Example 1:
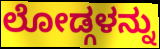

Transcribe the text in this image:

ಲೋಡ್ಗಳನ್ನು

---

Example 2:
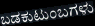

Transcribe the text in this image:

ಬಡಕುಟುಂಬಗಳು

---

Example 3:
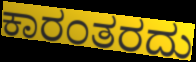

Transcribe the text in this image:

ಕಾರಂತರದು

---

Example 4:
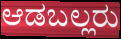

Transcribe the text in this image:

ಆಡಬಲ್ಲರು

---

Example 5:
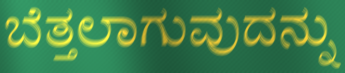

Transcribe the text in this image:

ಬೆತ್ತಲಾಗುವುದನ್ನು